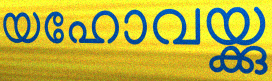
യഹോവയ്ക്കു